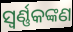
ସ୍ୱର୍ଣ୍ଣକଙ୍କଣ